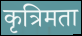
कृत्रिमता